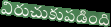
విరుచుకుపడింది